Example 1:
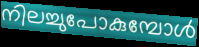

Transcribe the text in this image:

നിലച്ചുപോകുമ്പോൾ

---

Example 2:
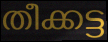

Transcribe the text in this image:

തീക്കട്ട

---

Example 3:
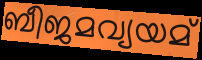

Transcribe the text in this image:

ബീജമവ്യയമ്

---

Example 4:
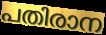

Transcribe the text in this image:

പതിരാന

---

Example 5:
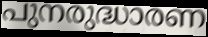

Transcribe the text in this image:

പുനരുദ്ധാരണ